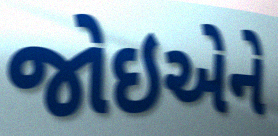
જોઇએને